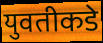
युवतीकडे